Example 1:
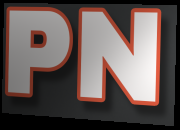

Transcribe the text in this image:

PN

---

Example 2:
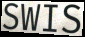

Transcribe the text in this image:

SWIS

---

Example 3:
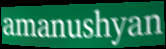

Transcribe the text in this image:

amanushyan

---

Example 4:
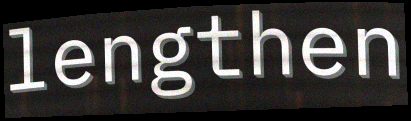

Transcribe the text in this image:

lengthen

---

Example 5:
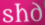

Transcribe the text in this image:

shd